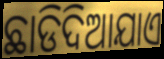
ଛାଡିଦିଆଯାଏ